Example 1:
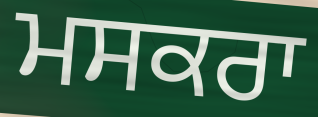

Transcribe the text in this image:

ਮਸਕਰਾ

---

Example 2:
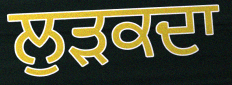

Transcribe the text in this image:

ਲੁੜਕਦਾ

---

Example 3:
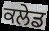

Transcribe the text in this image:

ਕਲੇਡ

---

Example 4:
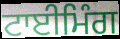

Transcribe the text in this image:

ਟਾਈਮਿੰਗ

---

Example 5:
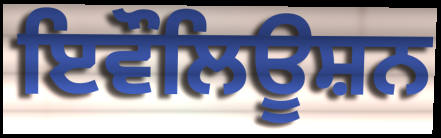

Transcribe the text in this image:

ਇਵੌਲਿਊਸ਼ਨ